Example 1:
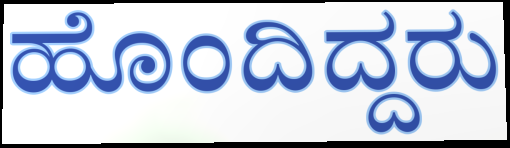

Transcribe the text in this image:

ಹೊಂದಿದ್ದರು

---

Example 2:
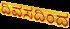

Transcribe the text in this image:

ದಿವಸದಿಂದ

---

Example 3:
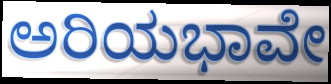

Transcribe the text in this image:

ಅರಿಯಭಾವೇ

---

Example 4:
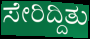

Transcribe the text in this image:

ಸೇರಿದ್ದಿತು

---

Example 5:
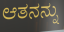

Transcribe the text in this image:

ಆತನನ್ನು